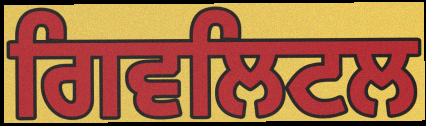
ਗਿਵਲਿਟਲ